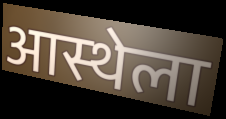
आस्थेला